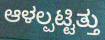
ಆಳಲ್ಪಟ್ಟಿತ್ತು